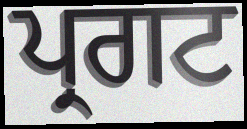
ਪ੍ਰਗਟ